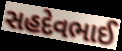
સહદેવભાઈ